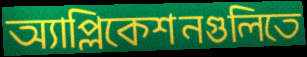
অ্যাপ্লিকেশনগুলিতে